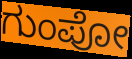
ಗುಂಪೋ